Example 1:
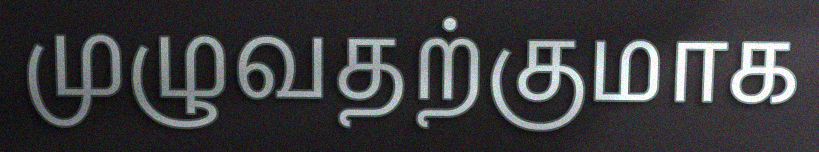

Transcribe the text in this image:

முழுவதற்குமாக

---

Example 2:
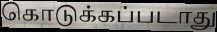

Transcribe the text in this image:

கொடுக்கப்படாது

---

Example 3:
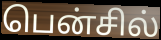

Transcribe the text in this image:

பென்சில்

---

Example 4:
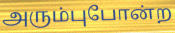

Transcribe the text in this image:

அரும்புபோன்ற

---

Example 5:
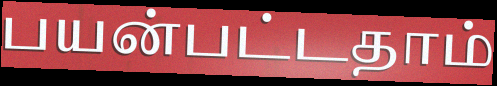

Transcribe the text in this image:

பயன்பட்டதாம்